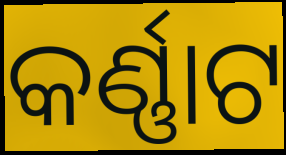
କର୍ଣ୍ଣାଟ